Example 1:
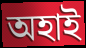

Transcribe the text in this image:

অহাই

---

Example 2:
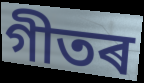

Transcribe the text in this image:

গীতৰ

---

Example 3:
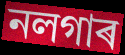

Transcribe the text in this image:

নলগাৰ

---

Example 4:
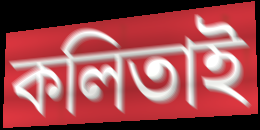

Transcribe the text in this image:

কলিতাই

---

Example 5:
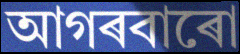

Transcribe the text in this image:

আগৰবাৰো